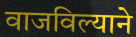
वाजविल्याने